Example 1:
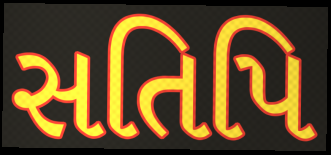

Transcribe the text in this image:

સતિપિ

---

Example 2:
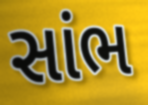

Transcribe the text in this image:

સાંભ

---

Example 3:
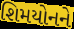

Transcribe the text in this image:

શિમયોનને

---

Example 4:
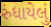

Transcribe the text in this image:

રુંધાયેલું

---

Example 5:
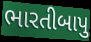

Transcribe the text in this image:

ભારતીબાપુ